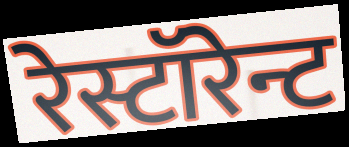
रेस्टॉरेन्ट